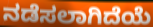
ನಡೆಸಲಾಗಿದೆಯೆ